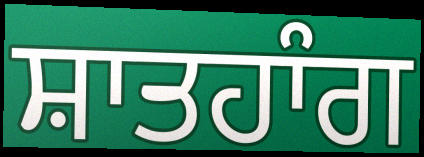
ਸ਼ਾਤਹਾੰਗ